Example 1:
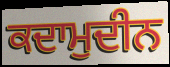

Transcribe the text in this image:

ਕਦਾਮੁਦੀਨ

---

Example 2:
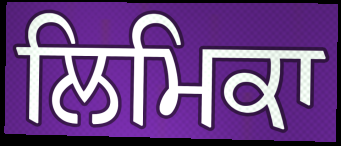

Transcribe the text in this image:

ਲਿਮਿਕਾ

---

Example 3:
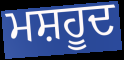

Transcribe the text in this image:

ਮਸ਼ਹੂਦ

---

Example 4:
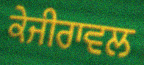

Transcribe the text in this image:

ਕੇਜੀਰਾਵਲ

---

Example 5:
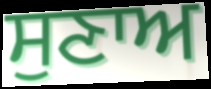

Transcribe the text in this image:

ਸੁਣਾਅ